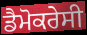
ਡੈਮੋਕਰੇਸੀ